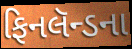
ફિનલૅન્ડના